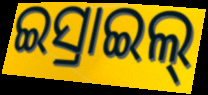
ଇସ୍ରାଇଲ୍